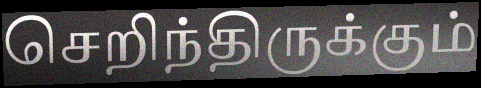
செறிந்திருக்கும்